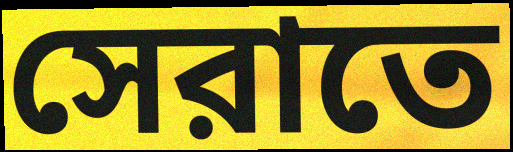
সেরাতে